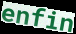
enfin